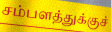
சம்பளத்துக்குச்